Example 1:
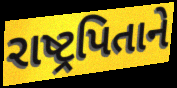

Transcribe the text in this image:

રાષ્ટ્રપિતાને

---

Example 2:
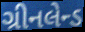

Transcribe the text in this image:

ગ્રીનલેન્ડ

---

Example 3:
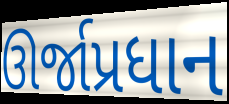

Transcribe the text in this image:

ઊર્જાપ્રધાન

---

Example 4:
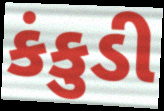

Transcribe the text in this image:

કંકુડી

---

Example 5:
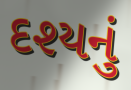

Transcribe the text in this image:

દશ્યનું